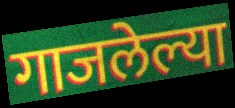
गाजलेल्या